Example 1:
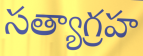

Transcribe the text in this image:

సత్యాగ్రహ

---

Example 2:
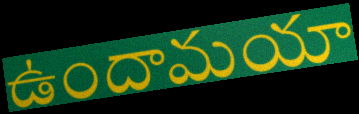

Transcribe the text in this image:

ఉందామయా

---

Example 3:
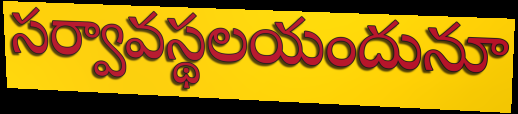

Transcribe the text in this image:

సర్వావస్థలయందునూ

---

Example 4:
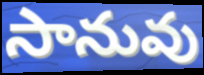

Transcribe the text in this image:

సానువు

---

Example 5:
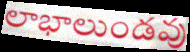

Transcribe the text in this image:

లాభాలుండవు